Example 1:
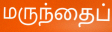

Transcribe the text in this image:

மருந்தைப்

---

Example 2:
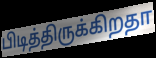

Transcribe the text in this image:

பிடித்திருக்கிறதா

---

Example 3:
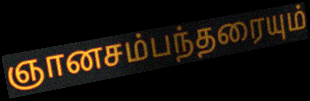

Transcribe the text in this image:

ஞானசம்பந்தரையும்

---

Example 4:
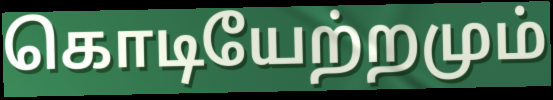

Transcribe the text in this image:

கொடியேற்றமும்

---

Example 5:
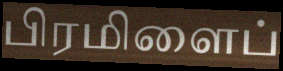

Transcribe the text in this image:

பிரமிளைப்